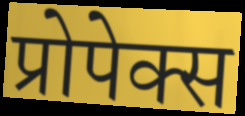
प्रोपेक्स